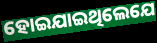
ହୋଇଯାଇଥିଲେଯେ